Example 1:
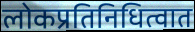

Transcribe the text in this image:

लोकप्रतिनिधित्वात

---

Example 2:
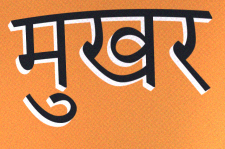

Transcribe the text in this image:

मुखर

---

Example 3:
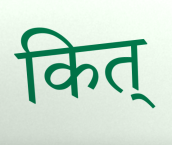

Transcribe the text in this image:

कित्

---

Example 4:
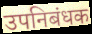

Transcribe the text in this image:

उपनिबंधक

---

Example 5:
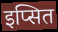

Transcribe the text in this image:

इप्सित